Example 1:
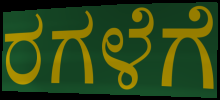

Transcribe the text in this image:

ರಗಳೆಗೆ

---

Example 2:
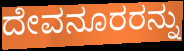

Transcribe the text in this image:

ದೇವನೂರರನ್ನು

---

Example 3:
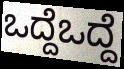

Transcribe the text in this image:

ಒದ್ದೆಒದ್ದೆ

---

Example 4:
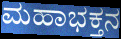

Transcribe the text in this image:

ಮಹಾಭಕ್ತನ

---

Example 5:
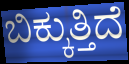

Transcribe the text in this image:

ಬಿಕ್ಕುತ್ತಿದೆ